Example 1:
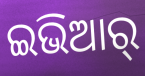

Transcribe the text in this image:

ଇଭିଆର୍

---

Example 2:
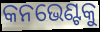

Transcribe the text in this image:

କନଭେଣ୍ଟକୁ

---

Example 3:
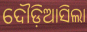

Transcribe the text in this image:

ଦୌଡ଼ିଆସିଲା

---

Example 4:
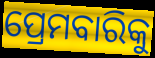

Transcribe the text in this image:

ପ୍ରେମବାରିକୁ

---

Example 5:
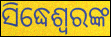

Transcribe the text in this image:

ସିଦ୍ଧେଶ୍ୱରଙ୍କ